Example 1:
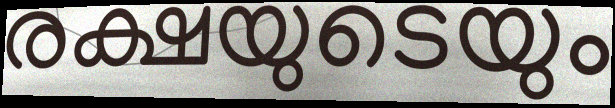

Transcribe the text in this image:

രക്ഷയുടെയും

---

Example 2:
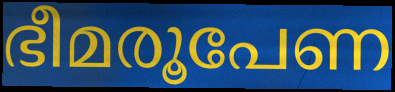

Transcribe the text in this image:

ഭീമരൂപേണ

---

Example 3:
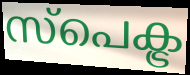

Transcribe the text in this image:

സ്‌പെക്ട്ര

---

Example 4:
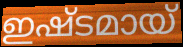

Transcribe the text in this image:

ഇഷ്ടമായ്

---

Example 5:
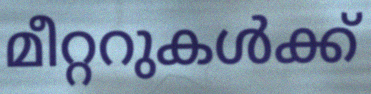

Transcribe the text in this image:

മീറ്ററുകൾക്ക്